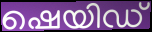
ഷെയിഡ്